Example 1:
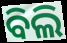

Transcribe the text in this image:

ବିଲି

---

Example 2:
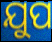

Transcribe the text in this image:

ଯୁପ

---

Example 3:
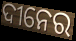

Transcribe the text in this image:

ଦୀନେର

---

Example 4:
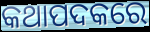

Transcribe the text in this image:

କଥାପଦକରେ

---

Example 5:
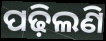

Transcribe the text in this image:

ପଢ଼ିଲଣି